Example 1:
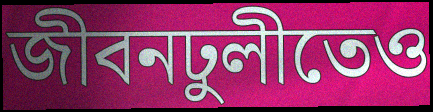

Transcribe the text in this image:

জীবনঢুলীতেও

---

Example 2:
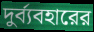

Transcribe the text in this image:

দুর্ব্যবহারের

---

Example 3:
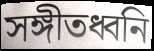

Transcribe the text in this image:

সঙ্গীতধ্বনি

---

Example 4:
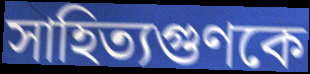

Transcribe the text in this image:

সাহিত্যগুণকে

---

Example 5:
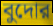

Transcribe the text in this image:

বুদোর